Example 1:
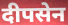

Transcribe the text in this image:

दीपसेन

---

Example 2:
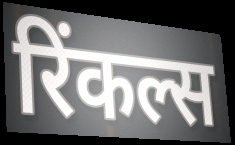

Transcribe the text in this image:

रिंकल्स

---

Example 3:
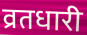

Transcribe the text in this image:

व्रतधारी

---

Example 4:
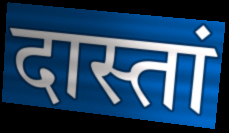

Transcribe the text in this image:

दास्तां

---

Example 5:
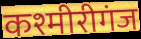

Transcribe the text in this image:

कश्मीरीगंज